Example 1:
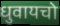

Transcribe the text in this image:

धुवायचो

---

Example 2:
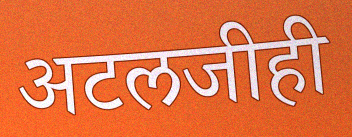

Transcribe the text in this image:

अटलजीही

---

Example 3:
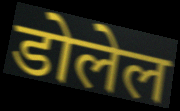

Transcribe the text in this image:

डोलेल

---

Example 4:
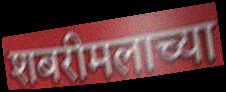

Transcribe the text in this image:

शबरीमलाच्या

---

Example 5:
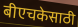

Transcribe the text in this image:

बीएचकेसाठी